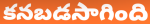
కనబడసాగింది